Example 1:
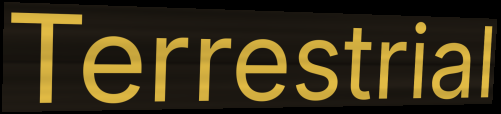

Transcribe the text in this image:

Terrestrial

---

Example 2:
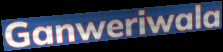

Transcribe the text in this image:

Ganweriwala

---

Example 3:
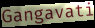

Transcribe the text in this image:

Gangavati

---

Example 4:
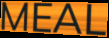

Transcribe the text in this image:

MEAL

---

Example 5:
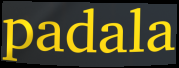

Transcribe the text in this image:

padala